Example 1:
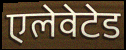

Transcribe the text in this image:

एलेवेटेड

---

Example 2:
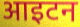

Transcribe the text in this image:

आइटन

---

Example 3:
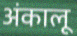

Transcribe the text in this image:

अंकालू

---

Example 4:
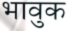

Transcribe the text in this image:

भावुक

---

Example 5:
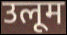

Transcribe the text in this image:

उलूम